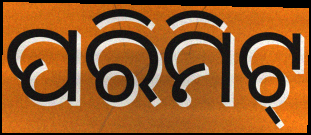
ପରିମିଟ୍